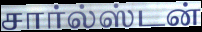
சார்ல்ஸ்டன்